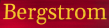
Bergstrom